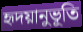
হৃদয়ানুভূতি